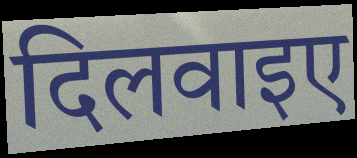
दिलवाइए